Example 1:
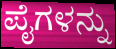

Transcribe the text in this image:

ಪೈಗಳನ್ನು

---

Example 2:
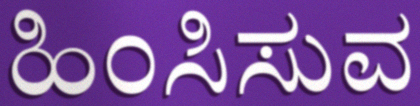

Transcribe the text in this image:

ಹಿಂಸಿಸುವ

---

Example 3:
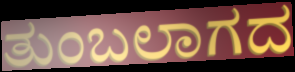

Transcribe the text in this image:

ತುಂಬಲಾಗದ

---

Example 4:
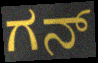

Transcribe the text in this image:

ಗನ್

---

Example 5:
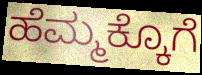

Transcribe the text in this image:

ಹೆಮ್ಮಕ್ಕೊಗೆ